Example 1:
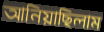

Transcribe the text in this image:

আনিয়াছিলাম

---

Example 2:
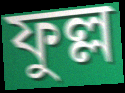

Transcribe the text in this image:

ফুল্ল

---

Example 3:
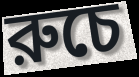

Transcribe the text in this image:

রুচে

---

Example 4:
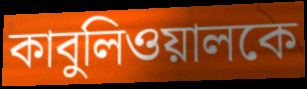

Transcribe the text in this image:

কাবুলিওয়ালকে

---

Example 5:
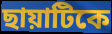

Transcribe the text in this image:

ছায়াটিকে